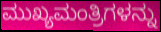
ಮುಖ್ಯಮಂತ್ರಿಗಳನ್ನು